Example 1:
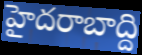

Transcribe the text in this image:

హైదరాబాద్ది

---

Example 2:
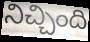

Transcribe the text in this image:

నిచ్చింది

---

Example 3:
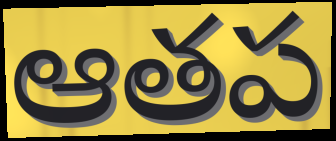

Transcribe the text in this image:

ఆతప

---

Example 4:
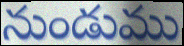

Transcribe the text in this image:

నుండుము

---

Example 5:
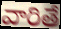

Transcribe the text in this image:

వారితే